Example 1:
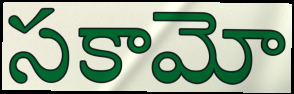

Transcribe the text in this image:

సకామో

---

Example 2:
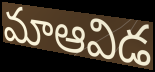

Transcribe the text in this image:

మాఆవిడ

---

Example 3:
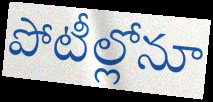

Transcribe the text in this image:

పోటీల్లోనూ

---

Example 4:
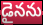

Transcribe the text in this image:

డైనను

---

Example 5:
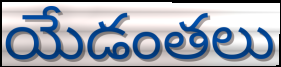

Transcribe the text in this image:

యేడంతలు